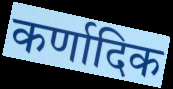
कर्णादिक